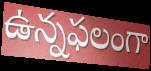
ఉన్నఫలంగా